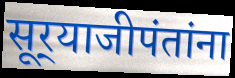
सूर्याजीपंतांना